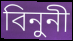
বিনুনী